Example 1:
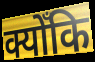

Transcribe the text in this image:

क्योँकि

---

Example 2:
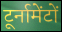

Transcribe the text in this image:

टूर्नामेंटों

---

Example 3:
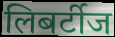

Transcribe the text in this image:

लिबर्टीज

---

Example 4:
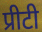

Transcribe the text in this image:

प्रीटी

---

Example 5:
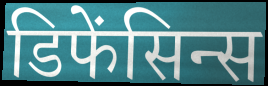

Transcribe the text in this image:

डिफेंसिन्स